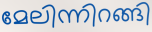
മേലിന്നിറങ്ങി